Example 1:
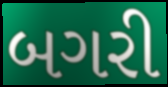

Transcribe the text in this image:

બગરી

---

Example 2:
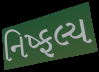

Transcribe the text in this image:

નિષ્ફલ્ય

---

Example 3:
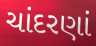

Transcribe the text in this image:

ચાંદરણાં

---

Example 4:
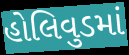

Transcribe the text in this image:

હોલિવુડમાં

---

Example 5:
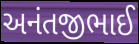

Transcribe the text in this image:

અનંતજીભાઈ